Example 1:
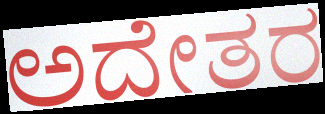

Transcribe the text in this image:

ಅದೇತರ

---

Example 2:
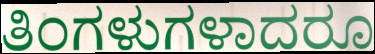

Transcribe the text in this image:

ತಿಂಗಳುಗಳಾದರೂ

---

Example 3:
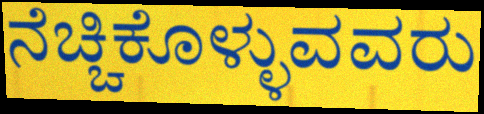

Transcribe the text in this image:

ನೆಚ್ಚಿಕೊಳ್ಳುವವರು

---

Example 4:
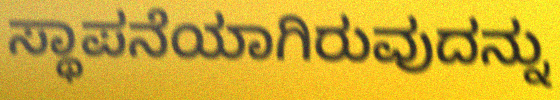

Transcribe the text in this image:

ಸ್ಥಾಪನೆಯಾಗಿರುವುದನ್ನು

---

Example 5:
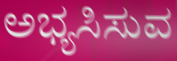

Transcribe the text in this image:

ಅಭ್ಯಸಿಸುವ